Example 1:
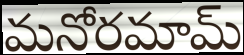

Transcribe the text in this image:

మనోరమామ్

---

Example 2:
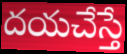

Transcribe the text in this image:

దయచేస్తే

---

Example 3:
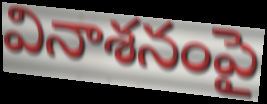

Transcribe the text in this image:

వినాశనంపై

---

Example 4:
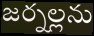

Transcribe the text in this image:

జర్నల్లను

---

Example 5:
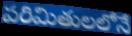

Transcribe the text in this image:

పరిమితులలోనే